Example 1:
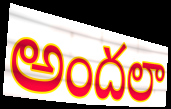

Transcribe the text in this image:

అందలా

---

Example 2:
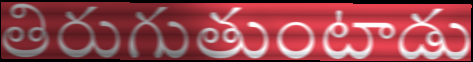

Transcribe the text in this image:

తిరుగుతుంటాడు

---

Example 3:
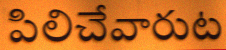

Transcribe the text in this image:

పిలిచేవారుట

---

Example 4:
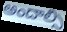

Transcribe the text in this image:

అందాల్సి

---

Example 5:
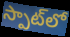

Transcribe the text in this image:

స్పాట్‌లో